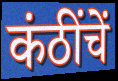
कंठींचें